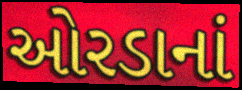
ઓરડાનાં